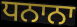
ਧਨਾਨਾ